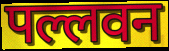
पल्लवन